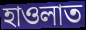
হাওলাত